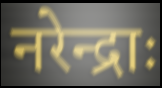
नरेन्द्राः